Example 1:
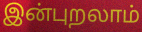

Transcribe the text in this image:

இன்புறலாம்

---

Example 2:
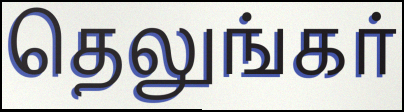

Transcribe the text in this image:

தெலுங்கர்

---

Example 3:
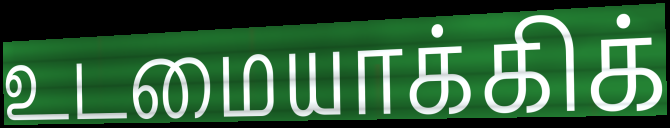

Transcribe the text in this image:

உடமையாக்கிக்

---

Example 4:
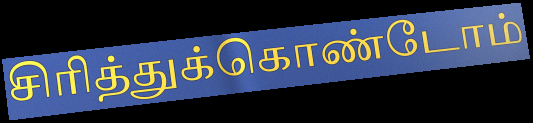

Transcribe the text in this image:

சிரித்துக்கொண்டோம்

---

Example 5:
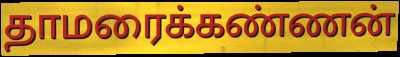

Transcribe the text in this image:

தாமரைக்கண்ணன்